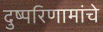
दुष्परिणामांचे